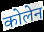
कोलेन